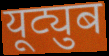
यूट्युब